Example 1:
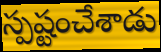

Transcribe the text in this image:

స్పష్టంచేశాడు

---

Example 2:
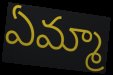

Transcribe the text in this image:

ఏమ్మా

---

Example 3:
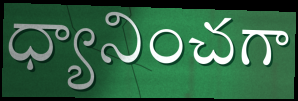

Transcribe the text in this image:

ధ్యానించగా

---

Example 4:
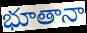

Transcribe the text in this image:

భూతానా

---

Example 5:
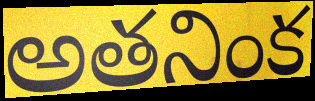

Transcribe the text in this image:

అతనింక